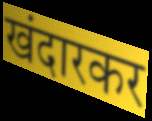
खंदारकर